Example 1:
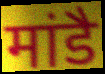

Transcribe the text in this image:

मांडै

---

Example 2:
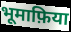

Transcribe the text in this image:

भूमाफ़िया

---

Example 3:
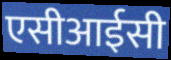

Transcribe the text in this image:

एसीआईसी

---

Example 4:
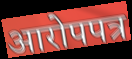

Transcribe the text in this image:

आरोपपत्र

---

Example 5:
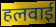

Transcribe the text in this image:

हलवाई